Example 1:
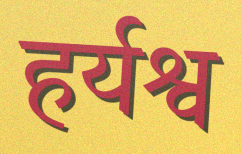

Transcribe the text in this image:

हर्यश्व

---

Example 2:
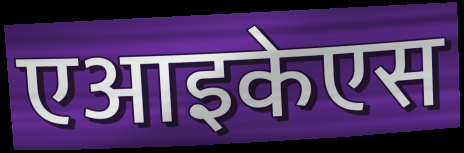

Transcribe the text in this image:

एआइकेएस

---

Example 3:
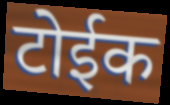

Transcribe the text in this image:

टोईक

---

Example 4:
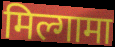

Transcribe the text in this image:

मिल्गामा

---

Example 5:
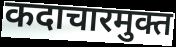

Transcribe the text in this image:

कदाचारमुक्त